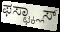
ಫಸ್ಟ್ಕ್ಲಾಸ್